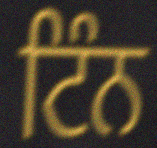
ਟਿੰਨ